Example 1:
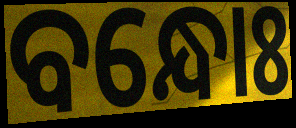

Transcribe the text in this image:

ବନ୍ଧୋଃ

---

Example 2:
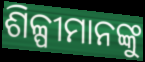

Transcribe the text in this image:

ଶିଳ୍ପୀମାନଙ୍କୁ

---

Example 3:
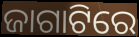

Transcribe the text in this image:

ଜାଗାଟିରେ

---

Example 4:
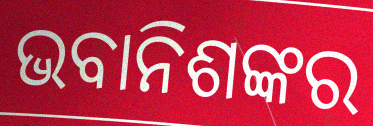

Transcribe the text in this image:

ଭବାନିଶଙ୍କର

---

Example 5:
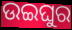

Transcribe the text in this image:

ଉଇଘୁର